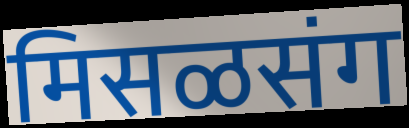
मिसळसंग